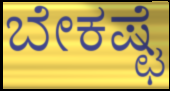
ಬೇಕಷ್ಟೆ